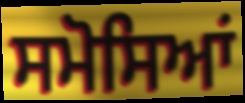
ਸਮੋਸਿਆਂ